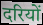
दरियों